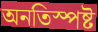
অনতিস্পষ্ট